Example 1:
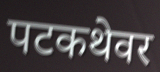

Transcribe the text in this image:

पटकथेवर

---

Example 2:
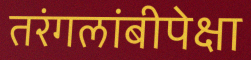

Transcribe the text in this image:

तरंगलांबीपेक्षा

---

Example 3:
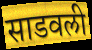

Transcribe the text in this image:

साडवली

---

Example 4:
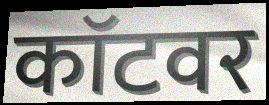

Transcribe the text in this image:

कॉटवर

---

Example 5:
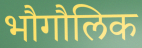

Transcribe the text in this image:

भौगौलिक